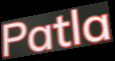
Patla